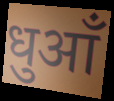
धुआँ